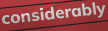
considerably